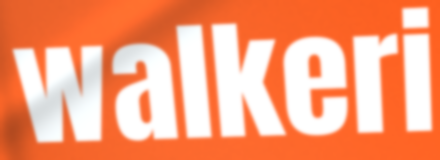
walkeri